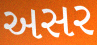
અસર